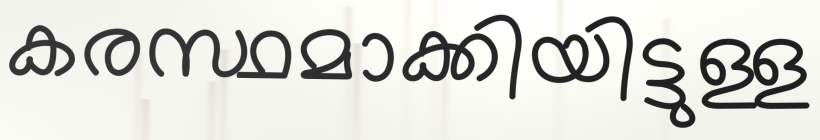
കരസ്ഥമാക്കിയിട്ടുള്ള